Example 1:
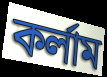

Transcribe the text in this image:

কর্লাম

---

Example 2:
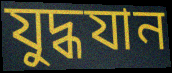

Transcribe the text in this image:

যুদ্ধযান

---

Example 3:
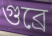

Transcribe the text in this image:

গুব্রে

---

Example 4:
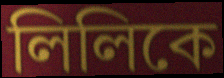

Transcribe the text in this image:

লিলিকে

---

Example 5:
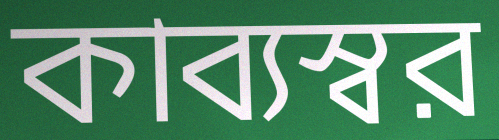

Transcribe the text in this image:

কাব্যস্বর